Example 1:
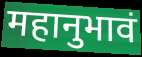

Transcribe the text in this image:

महानुभावं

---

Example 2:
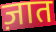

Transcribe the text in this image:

ज़ात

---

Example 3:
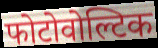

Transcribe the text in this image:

फोटोवोल्टिक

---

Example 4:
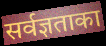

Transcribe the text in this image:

सर्वज्ञताका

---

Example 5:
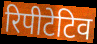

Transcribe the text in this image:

रिपीटेटिव